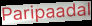
Paripaadal